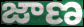
జాణ